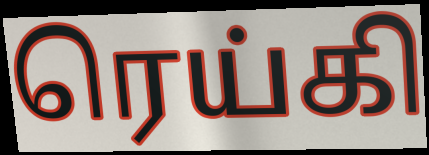
ரெய்கி